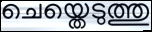
ചെയ്തെടുത്തു